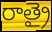
రాత్రై